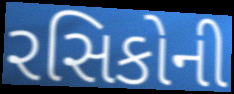
રસિકોની